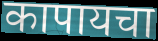
कापायचा